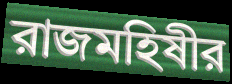
রাজমহিষীর